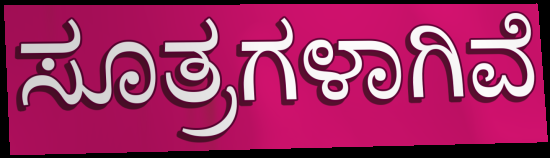
ಸೂತ್ರಗಳಾಗಿವೆ